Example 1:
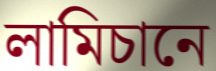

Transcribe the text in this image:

লামিচানে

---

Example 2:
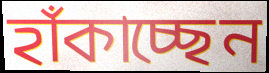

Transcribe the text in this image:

হাঁকাচ্ছেন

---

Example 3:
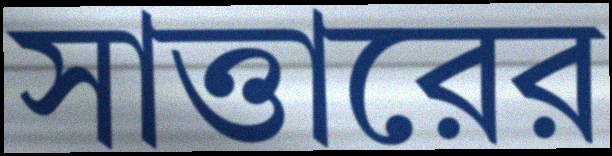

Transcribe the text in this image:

সাত্তারের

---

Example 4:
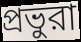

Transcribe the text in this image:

প্রভুরা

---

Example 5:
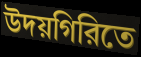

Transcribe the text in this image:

উদয়গিরিতে